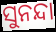
ସୁନନ୍ଦା